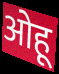
ओहू